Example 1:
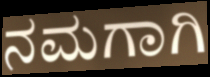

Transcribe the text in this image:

ನಮಗಾಗಿ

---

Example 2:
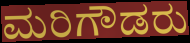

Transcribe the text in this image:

ಮರಿಗೌಡರು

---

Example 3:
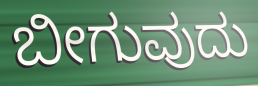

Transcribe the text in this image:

ಬೀಗುವುದು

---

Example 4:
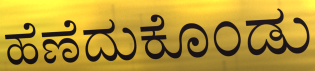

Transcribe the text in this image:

ಹೆಣೆದುಕೊಂಡು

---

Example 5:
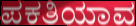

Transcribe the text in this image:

ಪಕತಿಯಾವ